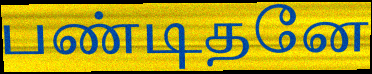
பண்டிதனே